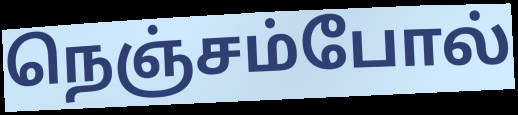
நெஞ்சம்போல்